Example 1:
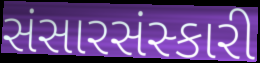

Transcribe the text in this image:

સંસારસંસ્કારી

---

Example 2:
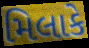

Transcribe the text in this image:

મિલાકે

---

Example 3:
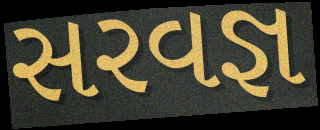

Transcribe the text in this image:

સરવજ્ઞ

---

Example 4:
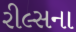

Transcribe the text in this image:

રીલ્સના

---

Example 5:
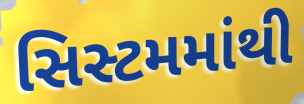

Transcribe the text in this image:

સિસ્ટમમાંથી